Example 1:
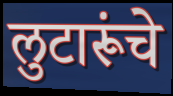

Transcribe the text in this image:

लुटारूंचे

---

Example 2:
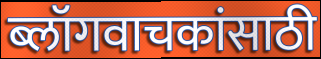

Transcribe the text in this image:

ब्लॉगवाचकांसाठी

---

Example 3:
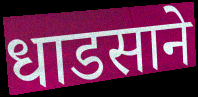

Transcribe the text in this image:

धाडसाने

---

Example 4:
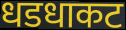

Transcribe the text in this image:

धडधाकट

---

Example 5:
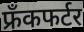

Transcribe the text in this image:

फ्रँकफर्टर